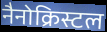
नैनोक्रिस्टल